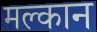
मल्कान